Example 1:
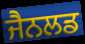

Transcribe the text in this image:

ਜੈਨਲਡ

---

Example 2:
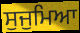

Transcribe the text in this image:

ਸੁਜੁਮਿਆ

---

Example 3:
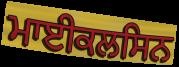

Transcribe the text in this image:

ਮਾਈਕਲਸਿਨ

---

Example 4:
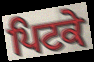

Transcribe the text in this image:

ਪਿਟਕੇ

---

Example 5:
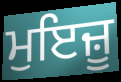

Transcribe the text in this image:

ਮੁਇਜ਼ੂ